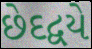
છેદદ્વયે